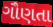
ગૌણતા